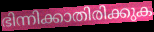
ഭിന്നിക്കാതിരിക്കുക